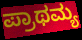
ಪ್ರಾಥಮ್ಯ